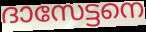
ദാസേട്ടനെ